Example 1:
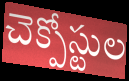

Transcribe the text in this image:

చెక్పోస్టుల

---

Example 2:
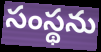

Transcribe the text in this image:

సంస్థను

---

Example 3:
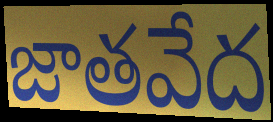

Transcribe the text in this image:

జాతవేద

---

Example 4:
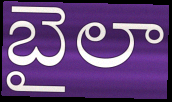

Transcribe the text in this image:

బైలా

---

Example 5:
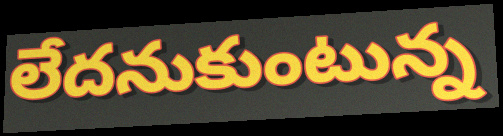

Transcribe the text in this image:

లేదనుకుంటున్న